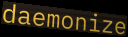
daemonize